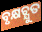
ବୃକ୍ଷଚ୍ଯୁତ